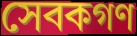
সেবকগণ